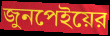
জুনপেইয়ের